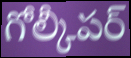
గోల్కీపర్